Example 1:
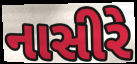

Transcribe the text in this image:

નાસીરે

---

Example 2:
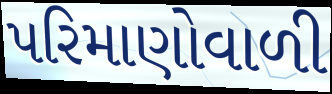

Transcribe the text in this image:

પરિમાણોવાળી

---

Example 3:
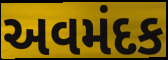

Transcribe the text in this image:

અવમંદક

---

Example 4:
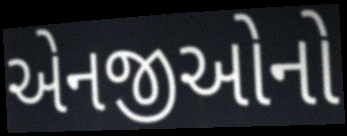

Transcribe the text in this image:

એનજીઓનો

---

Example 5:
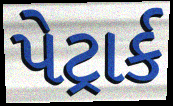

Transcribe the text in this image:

પેટ્રાર્ક